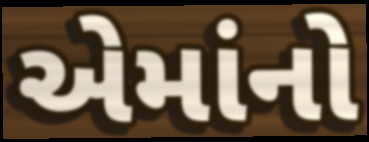
એમાંનો